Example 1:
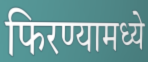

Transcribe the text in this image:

फिरण्यामध्ये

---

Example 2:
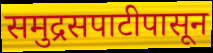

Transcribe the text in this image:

समुद्रसपाटीपासून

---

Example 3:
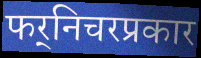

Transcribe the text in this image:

फर्निचरप्रकार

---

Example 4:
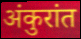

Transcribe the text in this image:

अंकुरांत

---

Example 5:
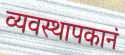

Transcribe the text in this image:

व्यवस्थापकानं